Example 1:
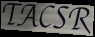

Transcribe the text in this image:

TACSR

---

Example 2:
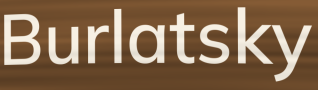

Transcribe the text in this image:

Burlatsky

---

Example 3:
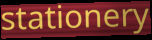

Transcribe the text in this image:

stationery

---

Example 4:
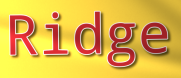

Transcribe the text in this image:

Ridge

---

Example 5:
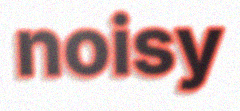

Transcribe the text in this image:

noisy